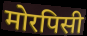
मोरपिसी